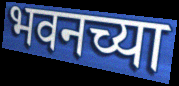
भवनच्या